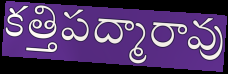
కత్తిపద్మారావు